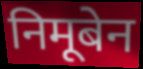
निमूबेन